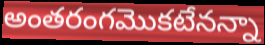
అంతరంగమొకటేనన్నా